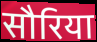
सौरिया